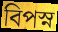
বিপস্ন